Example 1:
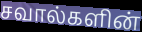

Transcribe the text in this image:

சவால்களின்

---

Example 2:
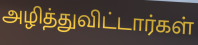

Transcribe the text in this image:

அழித்துவிட்டார்கள்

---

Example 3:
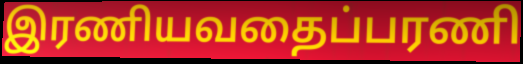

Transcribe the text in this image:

இரணியவதைப்பரணி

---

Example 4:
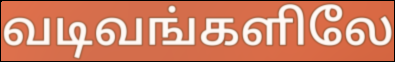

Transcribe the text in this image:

வடிவங்களிலே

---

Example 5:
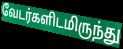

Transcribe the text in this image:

வேடர்களிடமிருந்து